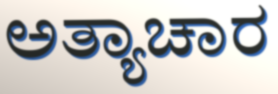
ಅತ್ಯಾಚಾರ